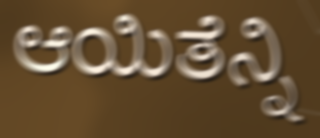
ಆಯಿತೆನ್ನಿ